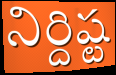
నిర్దిష్ట